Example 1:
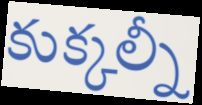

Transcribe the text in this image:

కుక్కల్నీ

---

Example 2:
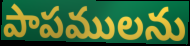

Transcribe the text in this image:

పాపములను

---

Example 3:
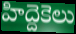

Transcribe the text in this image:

హిద్దెకెలు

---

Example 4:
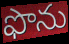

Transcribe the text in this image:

ఫొను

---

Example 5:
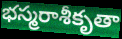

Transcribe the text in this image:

భస్మరాశీకృతా